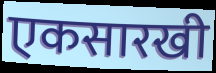
एकसारखी